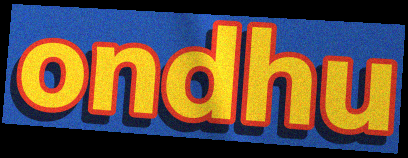
ondhu